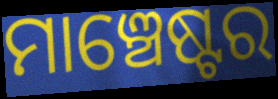
ମାଞ୍ଚେଷ୍ଟର